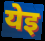
येइ